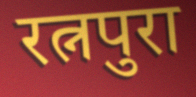
रत्नपुरा